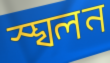
স্খলন